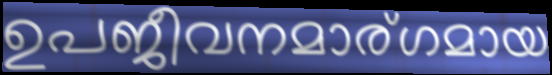
ഉപജീവനമാര്ഗമായ